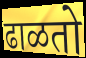
ढाळतो